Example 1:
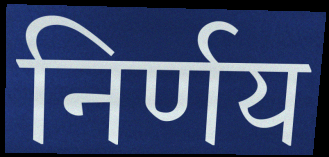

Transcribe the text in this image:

निर्णय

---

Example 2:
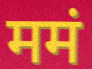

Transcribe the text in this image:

ममं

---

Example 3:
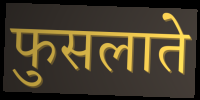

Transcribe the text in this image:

फुसलाते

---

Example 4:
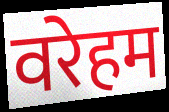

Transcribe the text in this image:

वरेहम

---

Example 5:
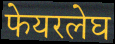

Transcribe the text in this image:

फेयरलेघ